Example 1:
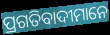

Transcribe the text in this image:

ପ୍ରଗତିବାଦୀମାନେ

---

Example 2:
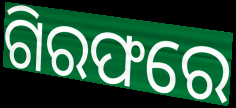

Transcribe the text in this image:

ଗିରଫରେ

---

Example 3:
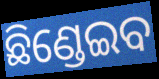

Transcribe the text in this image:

ଛିଣ୍ଡେଇବ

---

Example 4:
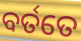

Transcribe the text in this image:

ବର୍ତତେ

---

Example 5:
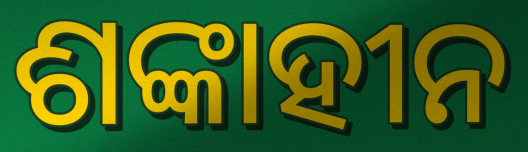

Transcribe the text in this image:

ଶଙ୍କାହୀନ